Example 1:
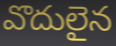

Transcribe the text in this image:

వొదులైన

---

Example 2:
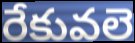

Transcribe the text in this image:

రేకువలె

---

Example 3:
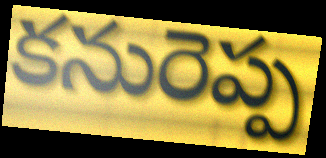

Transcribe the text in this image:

కనురెప్ప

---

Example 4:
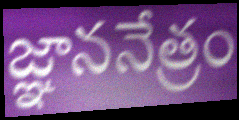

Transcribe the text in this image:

జ్ఞాననేత్రం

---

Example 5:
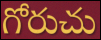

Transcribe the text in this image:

గోరుచు